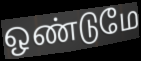
ஒண்டுமே